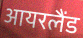
आयरलैंड